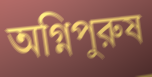
অগ্নিপুরুষ